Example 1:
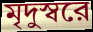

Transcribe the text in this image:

মৃদুস্বরে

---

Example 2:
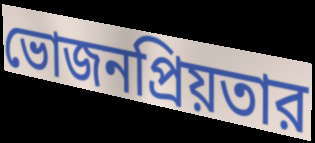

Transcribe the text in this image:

ভোজনপ্রিয়তার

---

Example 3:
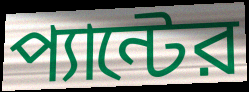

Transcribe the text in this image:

প্যান্টের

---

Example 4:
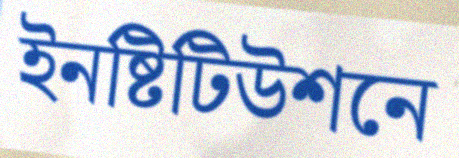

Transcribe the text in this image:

ইনষ্টিটিউশনে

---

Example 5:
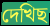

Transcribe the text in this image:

দেখিছ